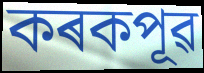
কৰকপূৱ